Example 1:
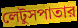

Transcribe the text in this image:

লেটুসপাতার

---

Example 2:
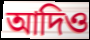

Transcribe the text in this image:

আদিও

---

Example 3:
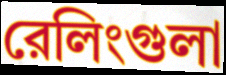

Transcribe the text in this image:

রেলিংগুলা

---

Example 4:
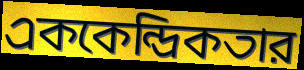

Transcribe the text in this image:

এককেন্দ্রিকতার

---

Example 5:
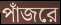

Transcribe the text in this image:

পাঁজরে